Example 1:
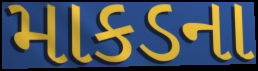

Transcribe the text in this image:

માકડના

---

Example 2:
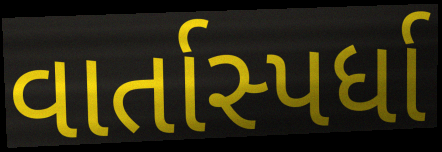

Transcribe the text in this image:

વાર્તાસ્પર્ધા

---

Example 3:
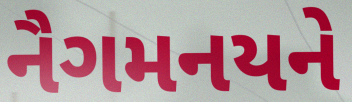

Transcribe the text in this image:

નૈગમનયને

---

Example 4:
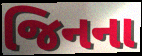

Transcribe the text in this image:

જિનના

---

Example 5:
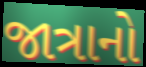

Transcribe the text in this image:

જાત્રાનો